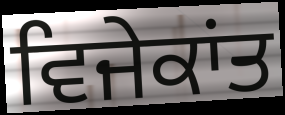
ਵਿਜੇਕਾਂਤ